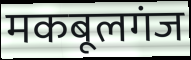
मकबूलगंज